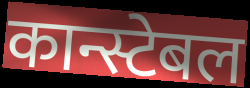
कान्स्टेबल